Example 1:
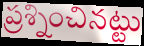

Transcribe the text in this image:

ప్రశ్నించినట్టు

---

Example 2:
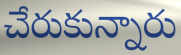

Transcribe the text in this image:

చేరుకున్నారు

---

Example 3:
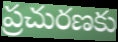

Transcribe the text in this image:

ప్రచురణకు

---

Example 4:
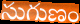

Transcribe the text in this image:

సుగుణం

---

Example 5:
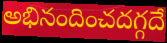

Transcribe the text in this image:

అభినందించదగ్గదే